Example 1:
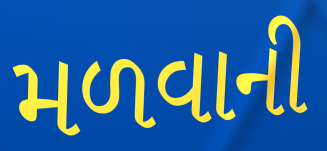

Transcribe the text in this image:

મળવાની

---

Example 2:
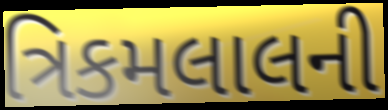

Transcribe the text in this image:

ત્રિકમલાલની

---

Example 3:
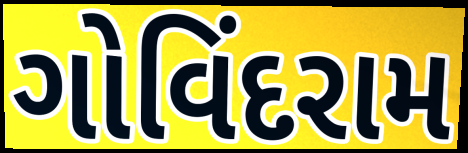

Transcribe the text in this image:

ગોવિંદરામ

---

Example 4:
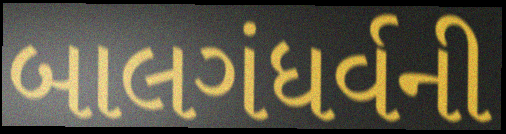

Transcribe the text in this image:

બાલગંધર્વની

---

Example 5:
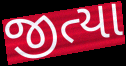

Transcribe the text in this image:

જીત્યા